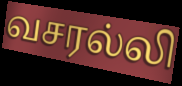
வசரல்லி